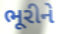
ભૂરીને